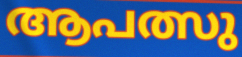
ആപത്സു